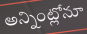
అన్నింట్లోనూ